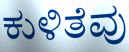
ಕುಳಿತೆವು